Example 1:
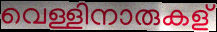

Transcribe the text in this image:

വെള്ളിനാരുകള്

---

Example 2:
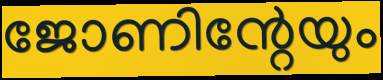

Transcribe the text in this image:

ജോണിന്റേയും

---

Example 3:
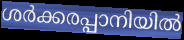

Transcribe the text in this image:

ശർക്കരപ്പാനിയിൽ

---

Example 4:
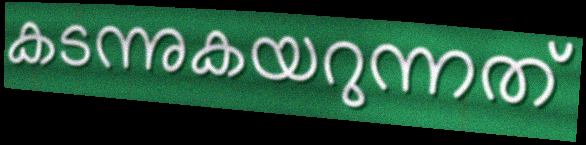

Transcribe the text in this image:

കടന്നുകയറുന്നത്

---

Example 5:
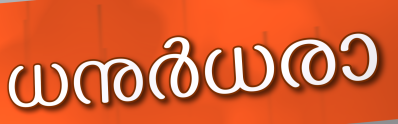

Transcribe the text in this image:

ധനുർധരാ